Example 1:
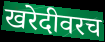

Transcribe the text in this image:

खरेदीवरच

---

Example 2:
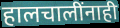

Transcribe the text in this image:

हालचालींनाही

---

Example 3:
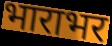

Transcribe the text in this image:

भाराभर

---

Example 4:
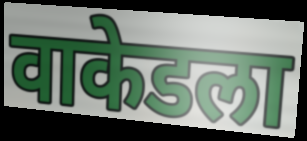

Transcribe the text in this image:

वाकेडला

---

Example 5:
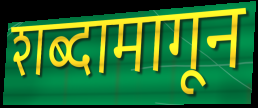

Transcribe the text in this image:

शब्दामागून